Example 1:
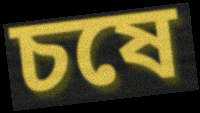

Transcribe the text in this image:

চষে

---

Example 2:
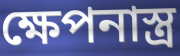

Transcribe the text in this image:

ক্ষেপনাস্ত্র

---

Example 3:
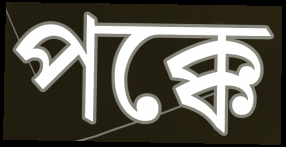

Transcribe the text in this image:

পক্কে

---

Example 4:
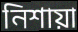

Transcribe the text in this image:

নিশায়া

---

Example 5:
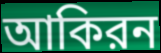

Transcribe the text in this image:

আকিরন